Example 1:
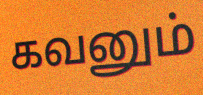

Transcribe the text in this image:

கவனும்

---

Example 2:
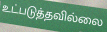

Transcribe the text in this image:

உட்படுத்தவில்லை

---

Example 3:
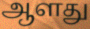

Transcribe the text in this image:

ஆளது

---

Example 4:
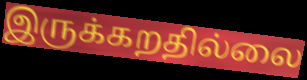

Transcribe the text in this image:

இருக்கறதில்லை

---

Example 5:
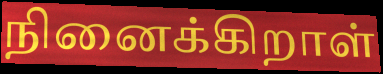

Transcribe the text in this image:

நினைக்கிறாள்